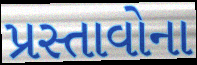
પ્રસ્તાવોના